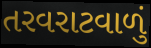
તરવરાટવાળું